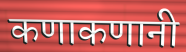
कणाकणानी